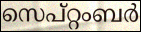
സെപ്റ്റംബർ